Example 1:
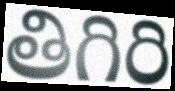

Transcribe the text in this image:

తిగిరి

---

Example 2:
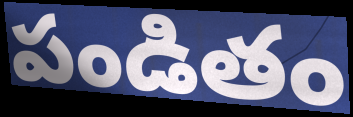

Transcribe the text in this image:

పండితం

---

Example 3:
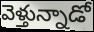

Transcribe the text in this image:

వెళ్తున్నాడో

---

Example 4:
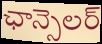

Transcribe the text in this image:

ఛాన్సెలర్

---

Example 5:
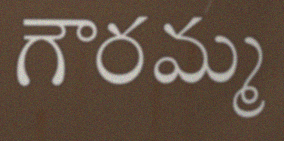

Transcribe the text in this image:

గౌరమ్మ